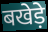
बखेड़े